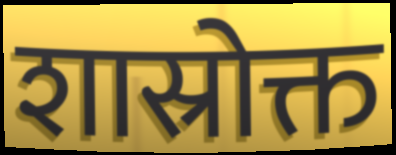
शास्रोक्त